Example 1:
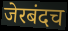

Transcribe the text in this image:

जेरबंदच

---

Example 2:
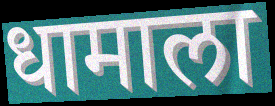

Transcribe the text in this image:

धामाला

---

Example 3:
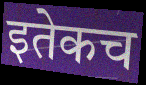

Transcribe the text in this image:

इतेकच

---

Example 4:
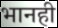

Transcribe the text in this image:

भानही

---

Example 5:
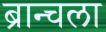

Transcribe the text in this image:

ब्रान्चला